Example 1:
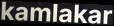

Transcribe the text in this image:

kamlakar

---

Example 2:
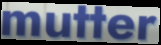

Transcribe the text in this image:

mutter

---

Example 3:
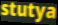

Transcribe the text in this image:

stutya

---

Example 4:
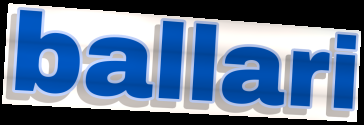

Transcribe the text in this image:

ballari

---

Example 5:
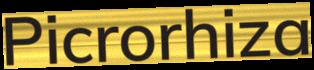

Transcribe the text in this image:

Picrorhiza